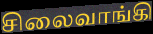
சிலைவாங்கி